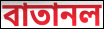
বাতানল